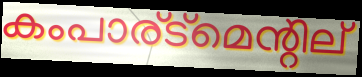
കംപാര്ട്മെന്റില്